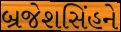
બ્રજેશસિંહને